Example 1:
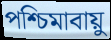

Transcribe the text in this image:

পশ্চিমাবায়ু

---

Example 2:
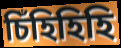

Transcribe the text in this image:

চিঁহিহিহি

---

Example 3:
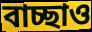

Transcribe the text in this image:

বাচ্ছাও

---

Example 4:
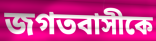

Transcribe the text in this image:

জগতবাসীকে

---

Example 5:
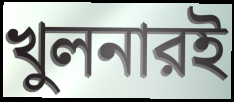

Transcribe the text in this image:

খুলনারই